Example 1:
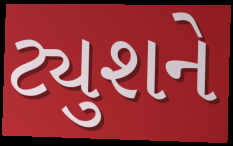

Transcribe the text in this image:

ટ્યુશને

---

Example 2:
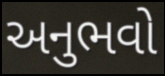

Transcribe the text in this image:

અનુભવો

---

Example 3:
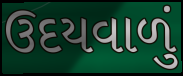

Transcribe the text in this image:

ઉદયવાળું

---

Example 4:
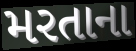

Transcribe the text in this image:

મરતાના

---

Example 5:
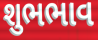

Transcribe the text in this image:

શુભભાવ